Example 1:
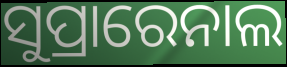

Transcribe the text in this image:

ସୁପ୍ରାରେନାଲ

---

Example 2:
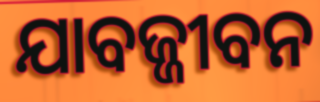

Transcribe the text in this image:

ଯାବଜ୍ଜୀବନ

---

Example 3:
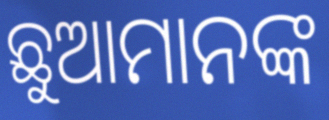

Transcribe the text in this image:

ଛୁଆମାନଙ୍କ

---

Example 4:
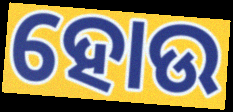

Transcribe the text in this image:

ହୋଉ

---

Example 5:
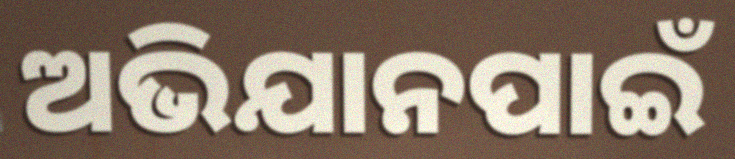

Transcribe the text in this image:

ଅଭିଯାନପାଇଁ